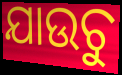
ଯାଉଚୁ